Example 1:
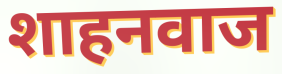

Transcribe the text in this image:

शाहनवाज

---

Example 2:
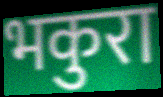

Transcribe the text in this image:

भकुरा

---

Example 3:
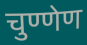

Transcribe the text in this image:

चुण्णेण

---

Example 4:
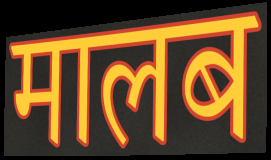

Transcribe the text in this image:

मालब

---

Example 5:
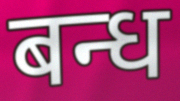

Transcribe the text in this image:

बन्ध